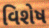
વિશેષ